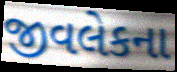
જીવલેકના